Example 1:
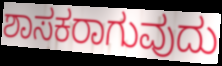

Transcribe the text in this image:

ಶಾಸಕರಾಗುವುದು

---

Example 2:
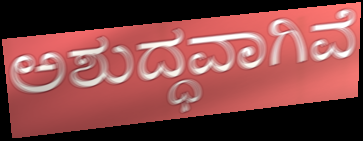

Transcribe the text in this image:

ಅಶುದ್ಧವಾಗಿವೆ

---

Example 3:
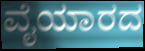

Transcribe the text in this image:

ವೈಯಾರದ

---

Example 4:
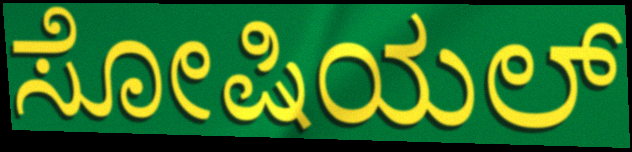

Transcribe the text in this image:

ಸೋಷಿಯಲ್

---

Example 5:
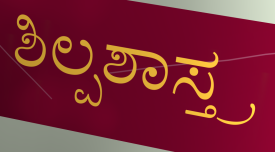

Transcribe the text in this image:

ಶಿಲ್ಪಶಾಸ್ತ್ರ